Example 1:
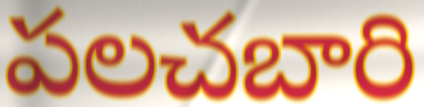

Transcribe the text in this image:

పలచబారి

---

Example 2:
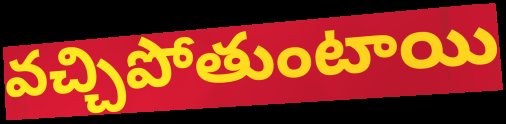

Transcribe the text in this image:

వచ్చిపోతుంటాయి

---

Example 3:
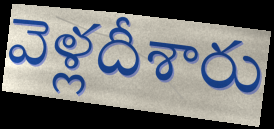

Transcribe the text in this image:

వెళ్లదీశారు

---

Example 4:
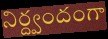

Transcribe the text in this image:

నిర్ద్వందంగా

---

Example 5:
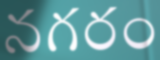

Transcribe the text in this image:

నగరం